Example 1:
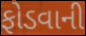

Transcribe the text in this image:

ફોડવાની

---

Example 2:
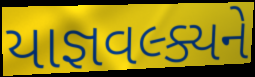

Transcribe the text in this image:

યાજ્ઞવલ્ક્યને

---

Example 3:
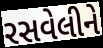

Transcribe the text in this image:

રસવેલીને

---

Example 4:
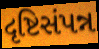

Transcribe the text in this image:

દૃષ્ટિસંપન્ન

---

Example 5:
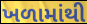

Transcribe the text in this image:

ખળામાંથી